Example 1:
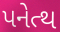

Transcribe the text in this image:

પનેત્થ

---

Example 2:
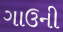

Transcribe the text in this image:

ગાઉની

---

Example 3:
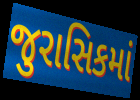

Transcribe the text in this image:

જુરાસિકમાં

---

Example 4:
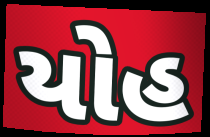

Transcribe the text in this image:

યોહ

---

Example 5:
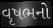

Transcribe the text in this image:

વૃષભનો